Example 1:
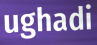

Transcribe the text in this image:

ughadi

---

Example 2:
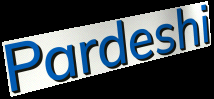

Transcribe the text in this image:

Pardeshi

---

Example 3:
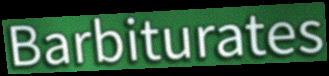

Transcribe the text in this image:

Barbiturates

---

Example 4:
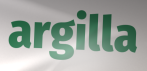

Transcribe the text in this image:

argilla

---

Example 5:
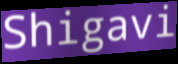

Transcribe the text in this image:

Shigavi